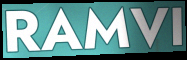
RAMVI